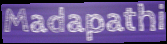
Madapathi